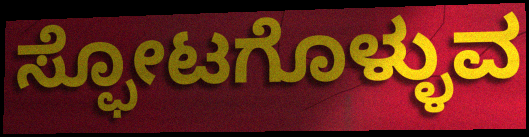
ಸ್ಫೋಟಗೊಳ್ಳುವ